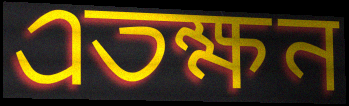
এতক্ষন